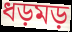
ধড়মড়